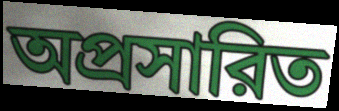
অপ্রসারিত